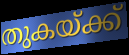
തുകയ്ക്ക്